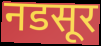
नडसूर